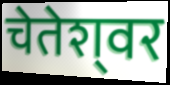
चेतेश्वर